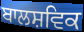
ਬਾਲਸ਼ਵਿਕ